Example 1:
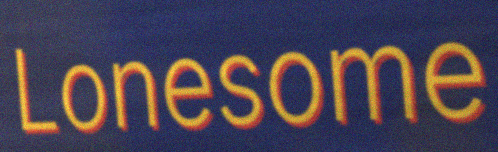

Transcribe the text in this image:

Lonesome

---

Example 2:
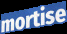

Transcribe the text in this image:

mortise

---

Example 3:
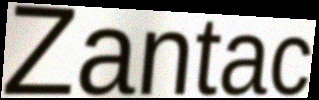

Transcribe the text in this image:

Zantac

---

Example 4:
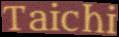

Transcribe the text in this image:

Taichi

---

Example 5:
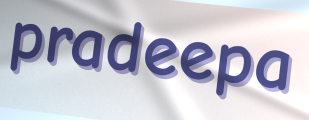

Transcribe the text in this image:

pradeepa